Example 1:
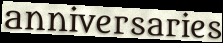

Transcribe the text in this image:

anniversaries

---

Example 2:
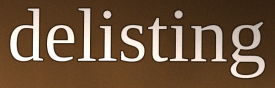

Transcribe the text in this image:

delisting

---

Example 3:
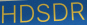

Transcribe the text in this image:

HDSDR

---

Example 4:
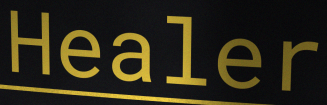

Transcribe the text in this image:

Healer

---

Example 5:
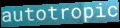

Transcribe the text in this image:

autotropic